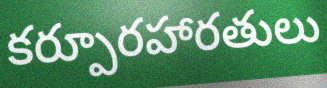
కర్పూరహారతులు